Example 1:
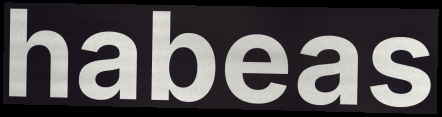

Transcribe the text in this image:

habeas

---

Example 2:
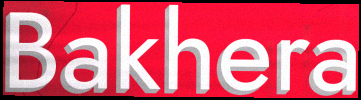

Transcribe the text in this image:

Bakhera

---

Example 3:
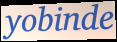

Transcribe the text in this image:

yobinde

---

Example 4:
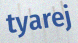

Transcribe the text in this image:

tyarej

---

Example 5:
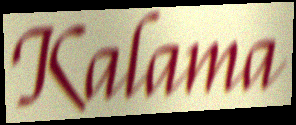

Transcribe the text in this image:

Kalama